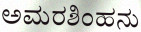
ಅಮರಶಿಂಹನು